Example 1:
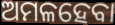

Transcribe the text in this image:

ଅମଳହେବା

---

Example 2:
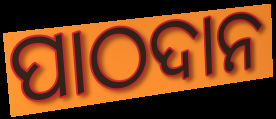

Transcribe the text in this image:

ପାଠଦାନ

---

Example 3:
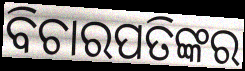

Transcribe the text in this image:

ବିଚାରପତିଙ୍କର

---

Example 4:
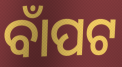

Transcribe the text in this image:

ବାଁପଟ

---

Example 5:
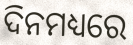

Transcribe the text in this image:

ଦିନମଧ୍ୟରେ